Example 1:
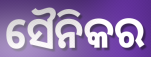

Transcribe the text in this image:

ସୈନିକର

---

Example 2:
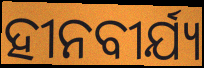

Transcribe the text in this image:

ହୀନବୀର୍ଯ୍ୟ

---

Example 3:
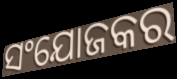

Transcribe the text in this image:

ସଂଯୋଜକର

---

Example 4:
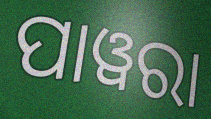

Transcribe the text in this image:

ପାୱରା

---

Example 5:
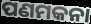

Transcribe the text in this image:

ପଣମକନା